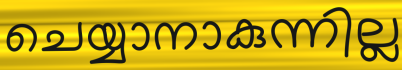
ചെയ്യാനാകുന്നില്ല